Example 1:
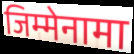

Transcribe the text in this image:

जिम्मेनामा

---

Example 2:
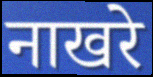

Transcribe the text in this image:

नाखरे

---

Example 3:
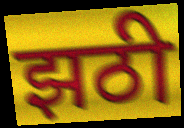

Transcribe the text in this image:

झठी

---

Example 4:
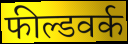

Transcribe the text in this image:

फील्डवर्क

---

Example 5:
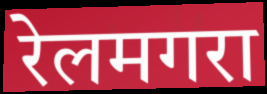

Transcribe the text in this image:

रेलमगरा